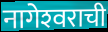
नागेश्‍वराची